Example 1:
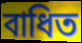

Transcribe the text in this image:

বাধিত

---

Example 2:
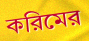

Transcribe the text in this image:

করিমের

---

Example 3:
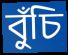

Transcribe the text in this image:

বুঁচি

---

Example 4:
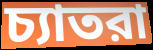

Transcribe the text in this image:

চ্যাতরা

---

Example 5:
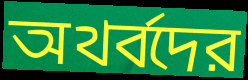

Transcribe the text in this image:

অথর্বদের